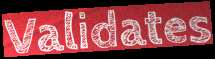
Validates